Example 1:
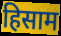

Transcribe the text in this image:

हिसाम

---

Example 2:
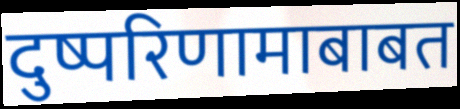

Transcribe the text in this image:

दुष्परिणामाबाबत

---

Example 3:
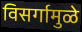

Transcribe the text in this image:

विसर्गामुळे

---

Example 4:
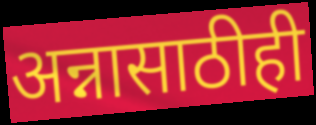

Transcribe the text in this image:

अन्नासाठीही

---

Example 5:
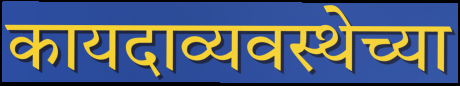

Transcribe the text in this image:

कायदाव्यवस्थेच्या